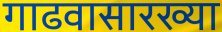
गाढवासारख्या